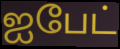
ஐபேட்